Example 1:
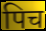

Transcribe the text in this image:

पिच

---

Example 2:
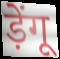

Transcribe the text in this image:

ड़ेंगू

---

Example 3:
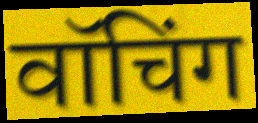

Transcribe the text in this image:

वॉचिंग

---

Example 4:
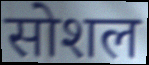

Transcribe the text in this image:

सोशल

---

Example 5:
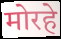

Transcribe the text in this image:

मोरहे